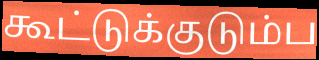
கூட்டுக்குடும்ப